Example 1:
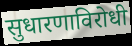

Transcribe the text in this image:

सुधारणाविरोधी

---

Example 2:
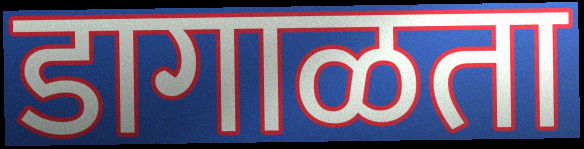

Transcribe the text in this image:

डागाळता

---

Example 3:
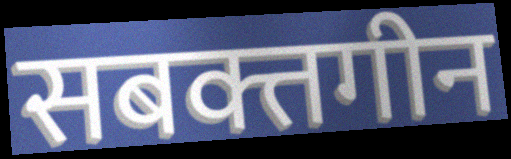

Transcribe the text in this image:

सबक्तगीन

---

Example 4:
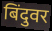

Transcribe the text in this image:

बिंदुवर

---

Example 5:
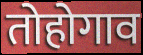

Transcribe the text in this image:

तोहोगाव